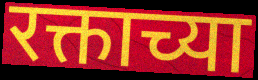
रक्ताच्या